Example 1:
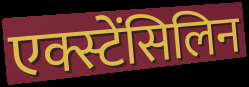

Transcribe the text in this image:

एक्स्टेंसिलिन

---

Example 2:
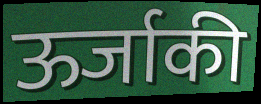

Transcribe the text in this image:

ऊर्जाकी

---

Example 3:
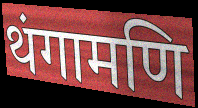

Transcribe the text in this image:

थंगामणि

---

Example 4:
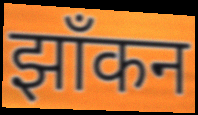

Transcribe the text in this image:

झाँकन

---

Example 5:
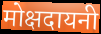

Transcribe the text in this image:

मोक्षदायनी